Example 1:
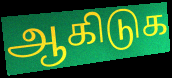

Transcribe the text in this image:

ஆகிடுக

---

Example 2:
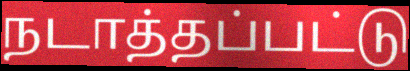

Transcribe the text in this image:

நடாத்தப்பட்டு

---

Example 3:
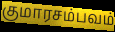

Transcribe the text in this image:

குமாரசம்பவம்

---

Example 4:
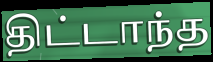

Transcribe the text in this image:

திட்டாந்த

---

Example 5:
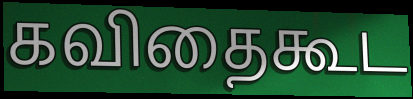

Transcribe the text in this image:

கவிதைகூட